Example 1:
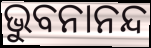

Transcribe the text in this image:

ଭୁବନାନନ୍ଦ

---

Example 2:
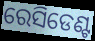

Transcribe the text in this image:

ରେସିଡେଣ୍ଟ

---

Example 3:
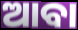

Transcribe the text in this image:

ଆବା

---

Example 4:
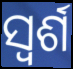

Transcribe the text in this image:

ସ୍ୱର୍ଶ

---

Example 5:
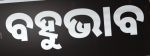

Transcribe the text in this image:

ବହୁଭାବ